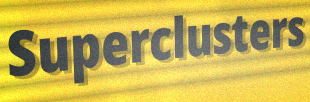
Superclusters